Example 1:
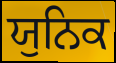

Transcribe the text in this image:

ਯੁਨਿਕ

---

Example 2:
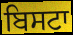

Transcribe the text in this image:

ਬਿਸਟਾ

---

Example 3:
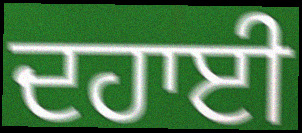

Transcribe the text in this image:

ਦਹਾਈ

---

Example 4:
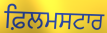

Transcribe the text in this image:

ਫ਼ਿਲਮਸਟਾਰ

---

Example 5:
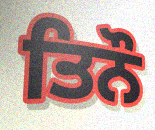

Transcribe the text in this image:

ਤਿਨੌ